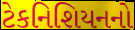
ટેકનિશિયનનો